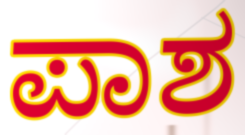
ಪಾಶ